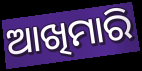
ଆଖିମାରି